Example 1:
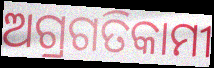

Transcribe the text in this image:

ଅଗ୍ରଗତିକାମୀ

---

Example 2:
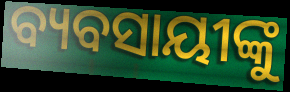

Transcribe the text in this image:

ବ୍ୟବସାୟୀଙ୍କୁ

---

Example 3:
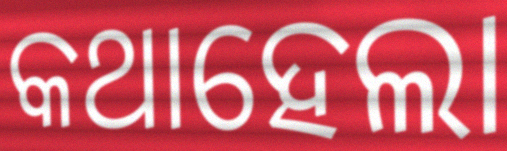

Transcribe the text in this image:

କଥାହେଲା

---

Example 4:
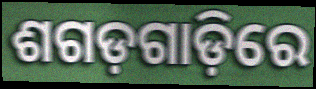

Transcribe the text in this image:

ଶଗଡ଼ଗାଡ଼ିରେ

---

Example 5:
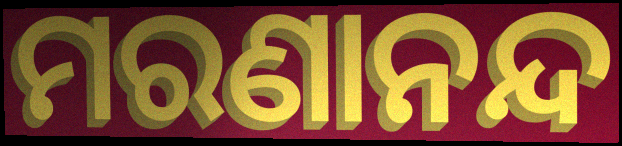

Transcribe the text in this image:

ମରଣାନନ୍ଦ